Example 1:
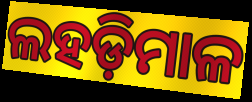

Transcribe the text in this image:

ଲହଡ଼ିମାଳ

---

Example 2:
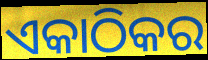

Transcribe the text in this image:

ଏକାଠିକର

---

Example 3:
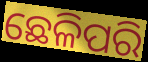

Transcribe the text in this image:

ଛେଳିପରି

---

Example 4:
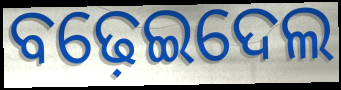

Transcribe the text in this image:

ବଢ଼େଇଦେଲ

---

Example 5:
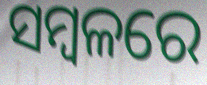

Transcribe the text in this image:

ସମ୍ବଳରେ